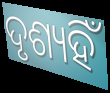
ଦୃଶ୍ୟହିଁ